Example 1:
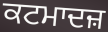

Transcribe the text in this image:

ਕਟਮਾਦਜ਼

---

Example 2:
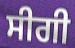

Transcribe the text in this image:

ਸੀਗੀ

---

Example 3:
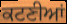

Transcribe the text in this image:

ਕਟਣੀਆਂ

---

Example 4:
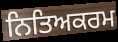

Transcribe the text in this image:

ਨਿਤਿਅਕਰਮ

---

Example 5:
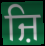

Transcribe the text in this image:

ਜ਼ਿ